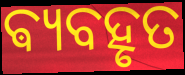
ଵ୍ୟବହୃତ